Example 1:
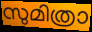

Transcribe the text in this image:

സുമിത്രാ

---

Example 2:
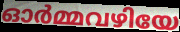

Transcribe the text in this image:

ഓർമ്മവഴിയേ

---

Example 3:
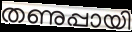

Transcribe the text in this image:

തണുപ്പായി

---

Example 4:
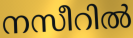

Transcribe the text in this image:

നസീറിൽ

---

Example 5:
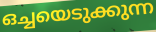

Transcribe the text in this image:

ഒച്ചയെടുക്കുന്ന